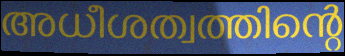
അധീശത്വത്തിന്റെ